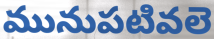
మునుపటివలె